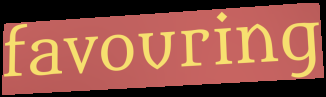
favouring